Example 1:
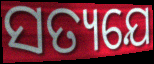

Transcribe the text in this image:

ସତ୍ୟଯେ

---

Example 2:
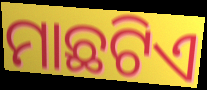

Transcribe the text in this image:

ମାଛଟିଏ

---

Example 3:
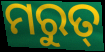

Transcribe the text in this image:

ମରୁତ୍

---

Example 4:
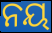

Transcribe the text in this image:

ନୟ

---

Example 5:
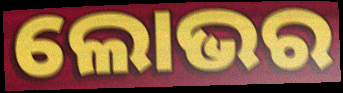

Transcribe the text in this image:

ଲୋଭର